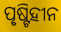
ପୃଷ୍ଟିହୀନ